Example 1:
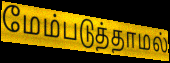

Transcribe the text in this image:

மேம்படுத்தாமல்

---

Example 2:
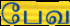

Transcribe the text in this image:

பேவ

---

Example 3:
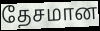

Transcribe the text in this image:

தேசமான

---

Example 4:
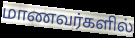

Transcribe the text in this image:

மாணவர்களில்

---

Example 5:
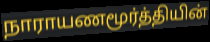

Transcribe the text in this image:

நாராயணமூர்த்தியின்